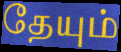
தேயும்